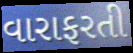
વારાફરતી